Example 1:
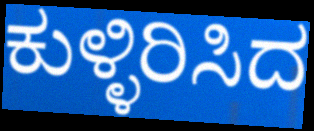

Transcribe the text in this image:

ಕುಳ್ಳಿರಿಸಿದ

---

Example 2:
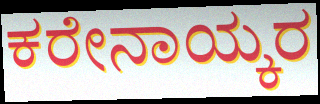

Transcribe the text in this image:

ಕರೇನಾಯ್ಕರ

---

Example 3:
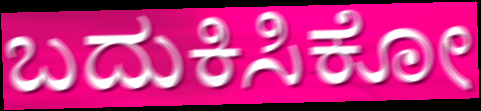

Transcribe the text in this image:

ಬದುಕಿಸಿಕೋ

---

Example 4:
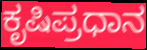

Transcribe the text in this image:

ಕೃಷಿಪ್ರಧಾನ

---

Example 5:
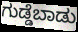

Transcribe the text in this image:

ಗುಡ್ಡೆಬಾಡು